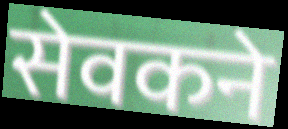
सेवकने